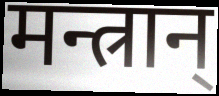
मन्त्रान्